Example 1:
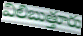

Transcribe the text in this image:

విలిబుత్తూరు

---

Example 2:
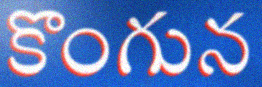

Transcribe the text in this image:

కొంగున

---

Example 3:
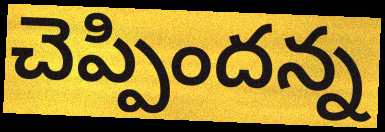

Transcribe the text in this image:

చెప్పిందన్న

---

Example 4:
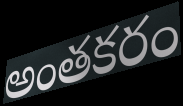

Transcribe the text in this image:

అంతకరం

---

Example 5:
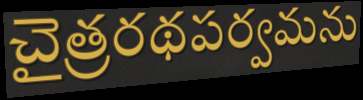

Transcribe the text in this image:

చైత్రరథపర్వమను